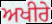
ਅਖੀਰੇ